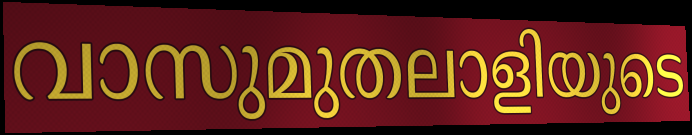
വാസുമുതലാളിയുടെ